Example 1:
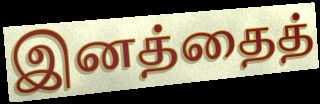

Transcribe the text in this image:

இனத்தைத்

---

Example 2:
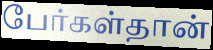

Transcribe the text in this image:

பேர்கள்தான்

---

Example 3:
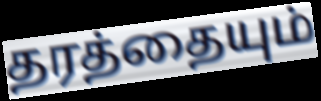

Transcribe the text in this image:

தரத்தையும்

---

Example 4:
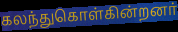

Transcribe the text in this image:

கலந்துகொள்கின்றனர்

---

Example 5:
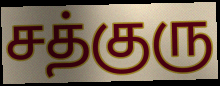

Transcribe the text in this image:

சத்குரு